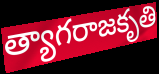
త్యాగరాజకృతి